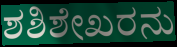
ಶಶಿಶೇಖರನು